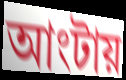
আংটায়